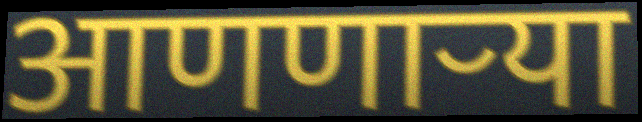
आणणाऱ्या